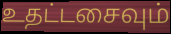
உதட்டசைவும்